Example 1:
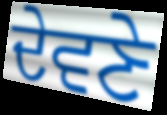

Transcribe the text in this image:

ਦੇਵਣੇ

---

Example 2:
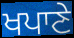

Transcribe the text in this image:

ਖਪਾਣੇ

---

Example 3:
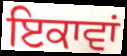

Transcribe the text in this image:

ਇਕਾਵਾਂ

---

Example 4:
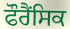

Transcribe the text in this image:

ਫੌਰੈਂਸਿਕ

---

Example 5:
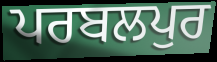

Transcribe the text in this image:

ਪਰਬਲਪੁਰ